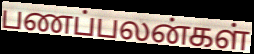
பணப்பலன்கள்